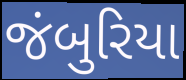
જંબુરિયા